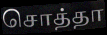
சொத்தா